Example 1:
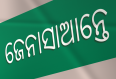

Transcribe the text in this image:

ଜେନାସାଆନ୍ତେ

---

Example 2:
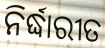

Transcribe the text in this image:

ନିର୍ଦ୍ଧାରୀତ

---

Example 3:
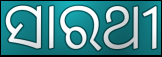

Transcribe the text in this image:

ସାରଥୀ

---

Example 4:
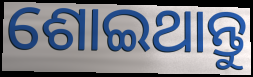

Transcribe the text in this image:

ଶୋଇଥାନ୍ତୁ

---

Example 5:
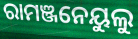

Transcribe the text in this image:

ରାମଞ୍ଜନେୟୁଲୁ